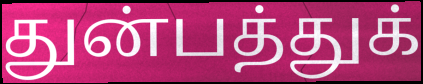
துன்பத்துக்